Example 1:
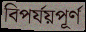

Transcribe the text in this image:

বিপর্যয়পূর্ণ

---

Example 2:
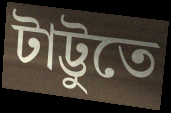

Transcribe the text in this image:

টাট্টুতে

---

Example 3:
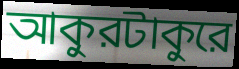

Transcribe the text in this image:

আকুরটাকুরে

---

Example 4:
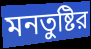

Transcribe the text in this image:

মনতুষ্টির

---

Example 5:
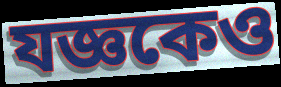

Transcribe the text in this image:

যজ্ঞকেও